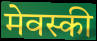
मेवस्की